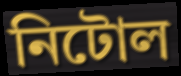
নিটোল